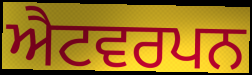
ਐਟਵਰਪਨ